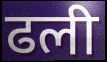
ढली